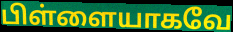
பிள்ளையாகவே